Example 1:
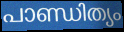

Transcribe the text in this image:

പാണ്ഡിത്യം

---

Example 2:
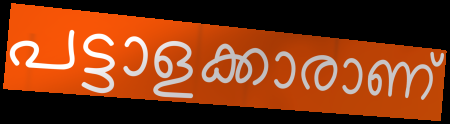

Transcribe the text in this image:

പട്ടാളക്കാരാണ്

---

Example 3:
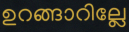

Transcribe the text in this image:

ഉറങ്ങാറില്ലേ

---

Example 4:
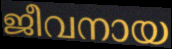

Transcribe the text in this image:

ജീവനായ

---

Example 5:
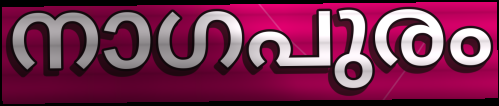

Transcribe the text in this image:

നാഗപുരം